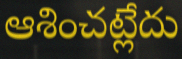
ఆశించట్లేదు